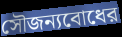
সৌজন্যবোধের